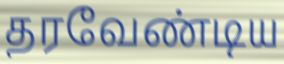
தரவேண்டிய